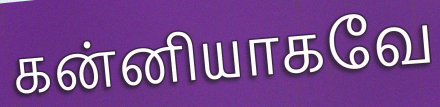
கன்னியாகவே